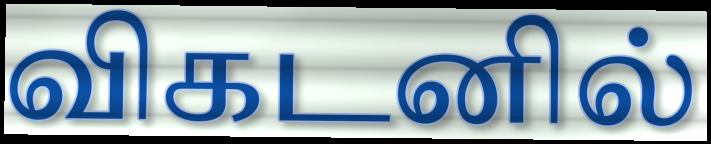
விகடனில்